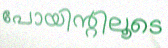
പോയിന്റിലൂടെ